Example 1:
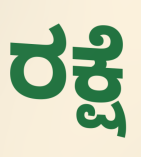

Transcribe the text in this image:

ರಕ್ಷೆ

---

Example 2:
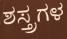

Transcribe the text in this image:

ಶಸ್ತ್ರಗಳ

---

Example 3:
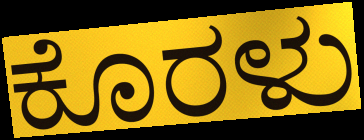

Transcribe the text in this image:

ಕೊರಳು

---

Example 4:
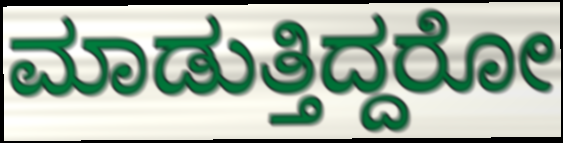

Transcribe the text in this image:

ಮಾಡುತ್ತಿದ್ದರೋ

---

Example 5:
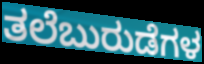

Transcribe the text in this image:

ತಲೆಬುರುಡೆಗಳ